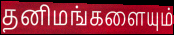
தனிமங்களையும்